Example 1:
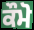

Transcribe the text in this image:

ਕੌਮੋ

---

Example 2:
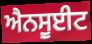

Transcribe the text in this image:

ਐਨਸੂਈਟ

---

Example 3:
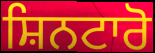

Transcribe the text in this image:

ਸ਼ਿਨਟਾਰੋ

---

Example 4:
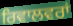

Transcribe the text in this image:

ਰਿਵਾਲਵਰਾਂ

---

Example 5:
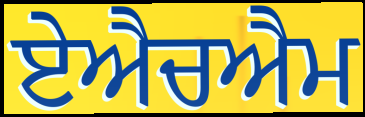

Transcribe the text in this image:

ਏਐਚਐਮ